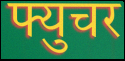
फ्युचर